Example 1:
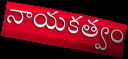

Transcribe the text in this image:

నాయకత్వం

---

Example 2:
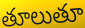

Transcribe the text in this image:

తూలుతూ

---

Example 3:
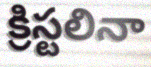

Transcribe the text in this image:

క్రిస్టలినా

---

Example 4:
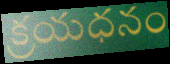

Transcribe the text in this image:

క్రయధనం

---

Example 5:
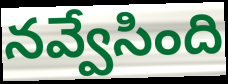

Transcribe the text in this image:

నవ్వేసింది